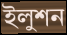
ইলুশন